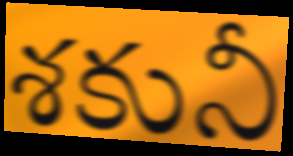
శకునీ